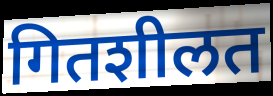
गितशीलत